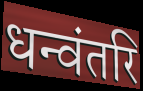
धन्वंतरि